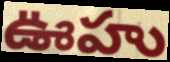
ఊహు